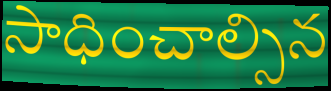
సాధించాల్సిన